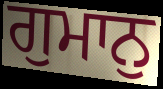
ਗੁਮਾਨੁ